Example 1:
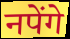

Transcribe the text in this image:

नपेंगे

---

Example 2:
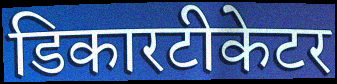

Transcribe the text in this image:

डिकारटीकेटर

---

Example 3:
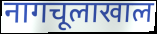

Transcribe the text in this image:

नागचूलाखाल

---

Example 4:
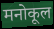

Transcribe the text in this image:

मनोकूल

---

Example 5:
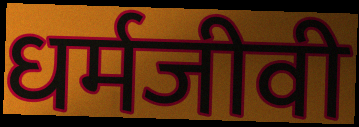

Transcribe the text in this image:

धर्मजीवी